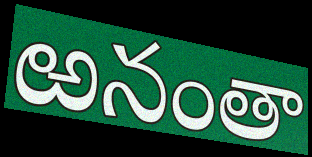
ఱనంతా